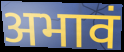
अभावं